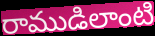
రాముడిలాంటి